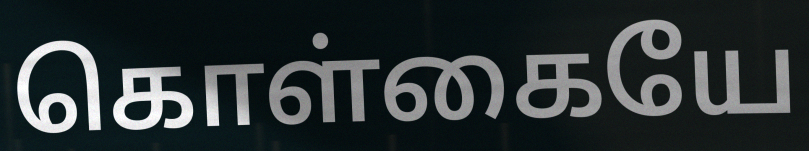
கொள்கையே